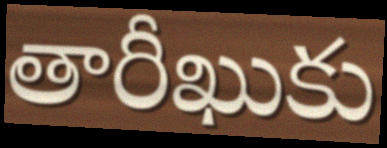
తారీఖుకు